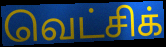
வெட்சிக்